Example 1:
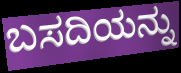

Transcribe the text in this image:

ಬಸದಿಯನ್ನು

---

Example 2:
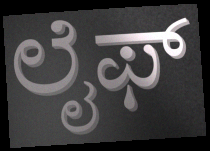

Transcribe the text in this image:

ಲೈಫ್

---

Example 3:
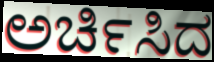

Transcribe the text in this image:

ಅರ್ಚಿಸಿದ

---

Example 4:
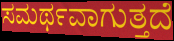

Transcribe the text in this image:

ಸಮರ್ಥವಾಗುತ್ತದೆ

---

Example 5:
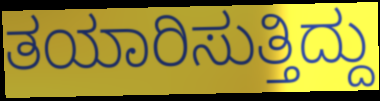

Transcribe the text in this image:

ತಯಾರಿಸುತ್ತಿದ್ದು